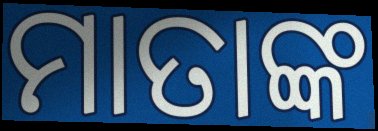
ମାତାଙ୍କ